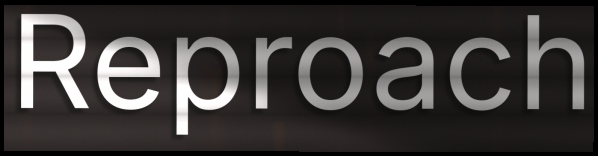
Reproach